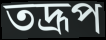
তদ্রূপ